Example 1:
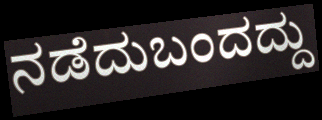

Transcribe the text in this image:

ನಡೆದುಬಂದದ್ದು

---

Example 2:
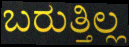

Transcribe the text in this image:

ಬರುತ್ತಿಲ್ಲ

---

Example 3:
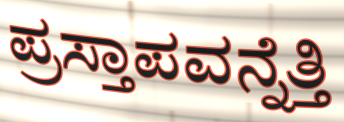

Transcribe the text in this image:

ಪ್ರಸ್ತಾಪವನ್ನೆತ್ತಿ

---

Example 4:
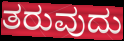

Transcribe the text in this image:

ತರುವುದು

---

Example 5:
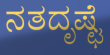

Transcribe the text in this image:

ನತದೃಷ್ಟೆ